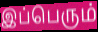
இப்பெரும்